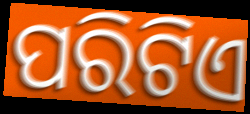
ପରିଟିଏ